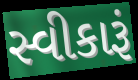
સ્વીકારૂં